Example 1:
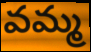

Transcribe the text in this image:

వమ్మ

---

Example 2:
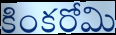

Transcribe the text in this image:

కింకరోమి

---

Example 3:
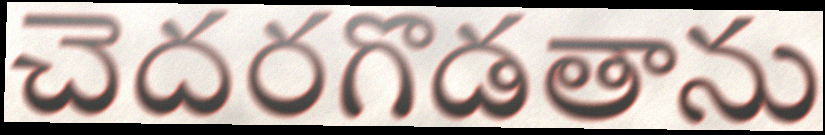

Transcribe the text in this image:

చెదరగొడతాను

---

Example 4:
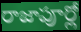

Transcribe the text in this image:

రాజాపూర్లో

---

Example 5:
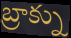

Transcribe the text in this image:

బ్రాక్ను